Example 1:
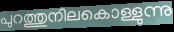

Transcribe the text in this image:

പുറത്തുനിലകൊള്ളുന്നു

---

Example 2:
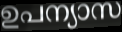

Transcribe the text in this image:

ഉപന്യാസ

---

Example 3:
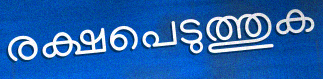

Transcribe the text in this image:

രക്ഷപെടുത്തുക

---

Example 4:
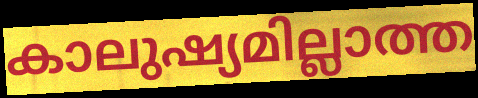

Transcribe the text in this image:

കാലുഷ്യമില്ലാത്ത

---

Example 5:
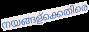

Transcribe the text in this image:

നയങ്ങള്ക്കെതിരെ